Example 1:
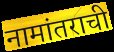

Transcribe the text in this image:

नामांतराची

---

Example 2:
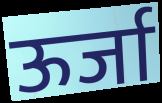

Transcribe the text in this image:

ऊर्जा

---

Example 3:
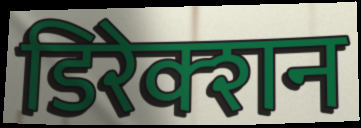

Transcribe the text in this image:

डिरेक्शन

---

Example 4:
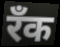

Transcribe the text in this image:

रँक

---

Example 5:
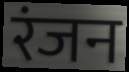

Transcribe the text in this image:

रंजन